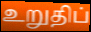
உறுதிப்